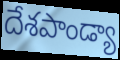
దేశపాండ్యా